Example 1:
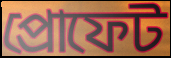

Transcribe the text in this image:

প্রোফেট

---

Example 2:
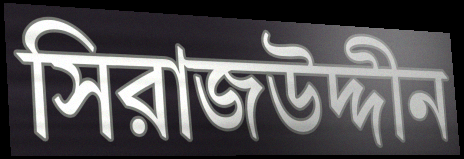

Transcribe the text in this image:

সিরাজউদ্দীন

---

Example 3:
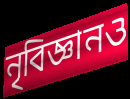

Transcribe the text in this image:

নৃবিজ্ঞানও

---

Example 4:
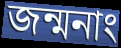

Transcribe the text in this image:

জন্মনাং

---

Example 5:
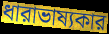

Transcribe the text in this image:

ধারাভাষ্যকার